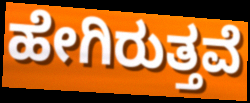
ಹೇಗಿರುತ್ತವೆ